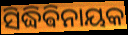
ସିଦ୍ଧିଵିନାୟକ